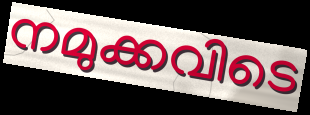
നമുക്കവിടെ